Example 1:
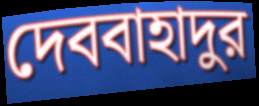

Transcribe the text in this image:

দেববাহাদুর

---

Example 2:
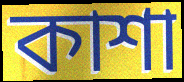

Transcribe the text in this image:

কাশা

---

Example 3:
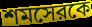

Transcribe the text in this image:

শমসেরকে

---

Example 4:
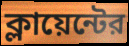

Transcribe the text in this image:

ক্লায়েন্টের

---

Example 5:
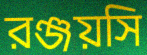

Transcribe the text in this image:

রঞ্জয়সি